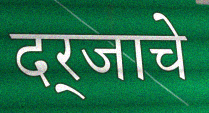
दर्जाचे